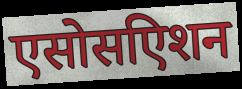
एसोसएिशन